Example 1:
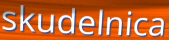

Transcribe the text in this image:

skudelnica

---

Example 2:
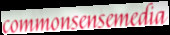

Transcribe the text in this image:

commonsensemedia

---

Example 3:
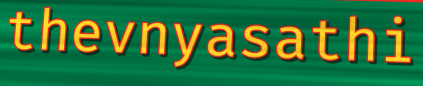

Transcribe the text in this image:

thevnyasathi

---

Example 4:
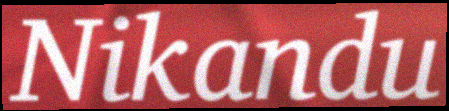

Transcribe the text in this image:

Nikandu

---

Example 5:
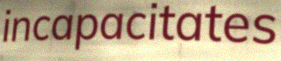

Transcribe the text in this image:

incapacitates